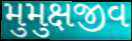
મુમુક્ષજીવ